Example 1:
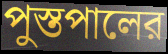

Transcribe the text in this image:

পুস্তপালের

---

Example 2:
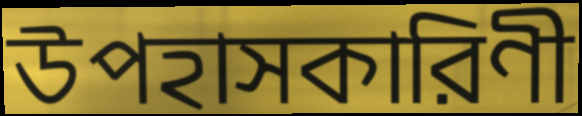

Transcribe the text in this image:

উপহাসকারিণী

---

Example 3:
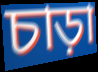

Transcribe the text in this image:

চাড়া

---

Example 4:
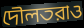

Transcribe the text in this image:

দৌলতরাও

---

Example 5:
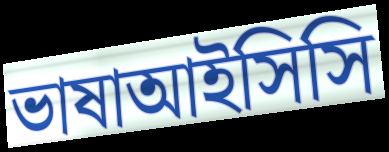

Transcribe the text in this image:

ভাষাআইসিসি